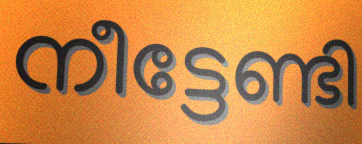
നീട്ടേണ്ടി